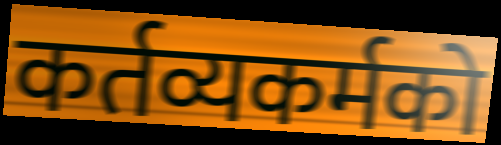
कर्तव्यकर्मको